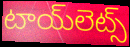
టాయ్‌లెట్స్